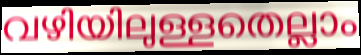
വഴിയിലുള്ളതെല്ലാം